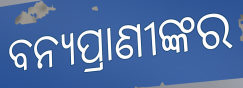
ବନ୍ୟପ୍ରାଣୀଙ୍କର